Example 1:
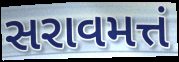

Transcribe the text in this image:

સરાવમત્તં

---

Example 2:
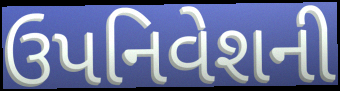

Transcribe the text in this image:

ઉપનિવેશની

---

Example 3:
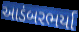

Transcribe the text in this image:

આડંબરભર્યા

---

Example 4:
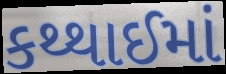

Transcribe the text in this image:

કથ્થાઈમાં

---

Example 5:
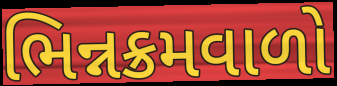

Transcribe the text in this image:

ભિન્નક્રમવાળો